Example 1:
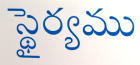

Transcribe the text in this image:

స్థైర్యము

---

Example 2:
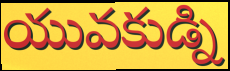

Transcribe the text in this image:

యువకుడ్ని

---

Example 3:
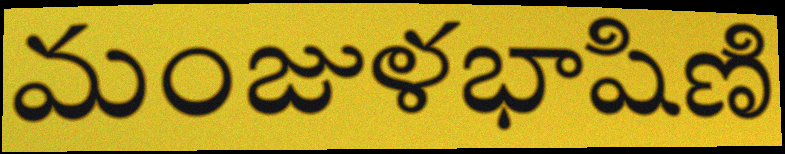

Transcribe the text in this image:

మంజుళభాషిణి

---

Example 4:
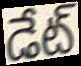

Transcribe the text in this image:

డేట్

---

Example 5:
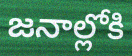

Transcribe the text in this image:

జనాల్లోకి